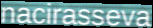
nacirasseva